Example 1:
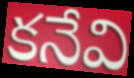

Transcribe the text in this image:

కనేవి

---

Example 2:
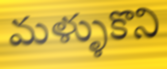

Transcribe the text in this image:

మళ్ళుకొని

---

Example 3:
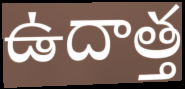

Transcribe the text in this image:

ఉదాత్త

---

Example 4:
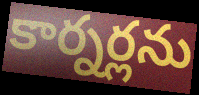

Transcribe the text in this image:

కార్నర్లను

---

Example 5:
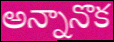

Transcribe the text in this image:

అన్నానొక